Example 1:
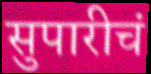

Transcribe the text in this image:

सुपारीचं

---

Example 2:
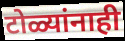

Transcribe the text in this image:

टोळ्यांनाही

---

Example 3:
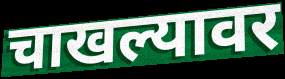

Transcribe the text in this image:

चाखल्यावर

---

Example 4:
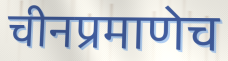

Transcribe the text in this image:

चीनप्रमाणेच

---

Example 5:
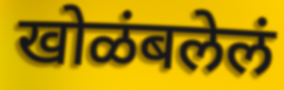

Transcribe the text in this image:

खोळंबलेलं